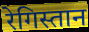
रेगिस्तान